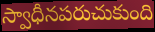
స్వాధీనపరుచుకుంది